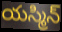
యస్మిన్